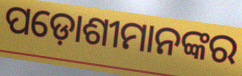
ପଡ଼ୋଶୀମାନଙ୍କର